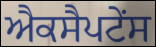
ਐਕਸੈਪਟੇਂਸ